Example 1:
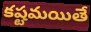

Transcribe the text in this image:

కష్టమయితే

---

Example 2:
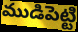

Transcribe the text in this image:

ముడిపెట్టి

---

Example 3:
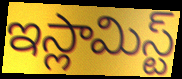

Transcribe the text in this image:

ఇస్లామిస్ట్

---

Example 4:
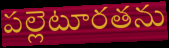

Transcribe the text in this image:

పల్లెటూరతను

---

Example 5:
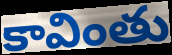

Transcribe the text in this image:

కావింతు